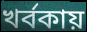
খর্বকায়